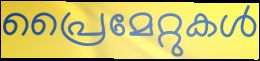
പ്രൈമേറ്റുകൾ